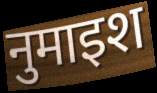
नुमाइश